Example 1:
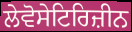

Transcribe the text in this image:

ਲੇਵੋਸੇਟਿਰਿਜ਼ੀਨ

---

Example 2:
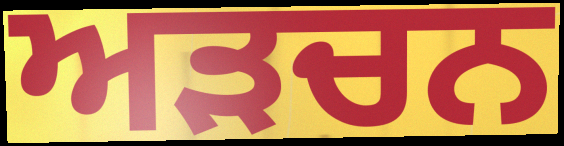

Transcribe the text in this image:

ਅੜਚਨ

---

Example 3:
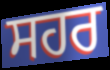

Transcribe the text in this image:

ਸਹਰ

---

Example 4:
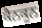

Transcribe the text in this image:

ਕੈਨਕੂਨ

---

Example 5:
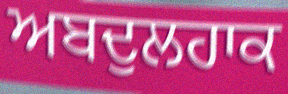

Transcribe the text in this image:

ਅਬਦੁਲਹਾਕ